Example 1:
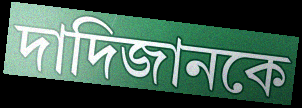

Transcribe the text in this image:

দাদিজানকে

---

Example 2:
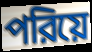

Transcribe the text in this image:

পরিয়ে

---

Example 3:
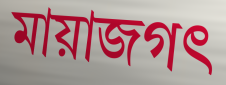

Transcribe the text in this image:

মায়াজগৎ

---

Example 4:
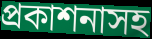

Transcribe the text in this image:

প্রকাশনাসহ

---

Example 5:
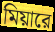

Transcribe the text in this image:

মিয়ারে